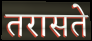
तरासते